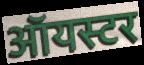
ऑयस्टर